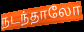
நடந்தாலோ